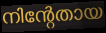
നിന്റേതായ